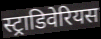
स्ट्राडिवेरियस